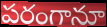
పరంగానూ